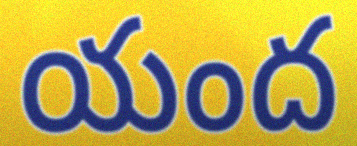
యంద